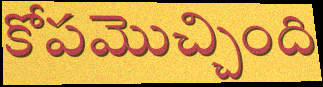
కోపమొచ్చింది